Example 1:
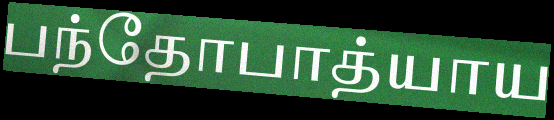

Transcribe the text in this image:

பந்தோபாத்யாய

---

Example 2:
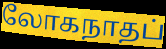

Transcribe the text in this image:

லோகநாதப்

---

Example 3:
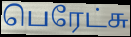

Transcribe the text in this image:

பெரேட்சு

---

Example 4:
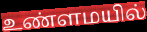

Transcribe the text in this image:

உண்ளமயில்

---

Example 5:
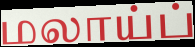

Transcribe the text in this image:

மலாய்ப்